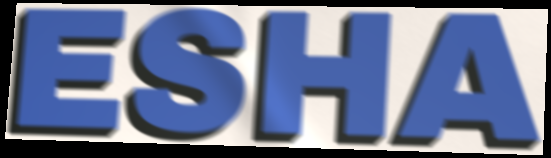
ESHA